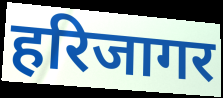
हरिजागर